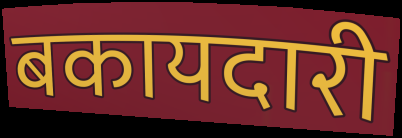
बकायदारी